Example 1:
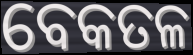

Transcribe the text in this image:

ବେକତଳ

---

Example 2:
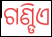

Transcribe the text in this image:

ଗଣ୍ଡିଏ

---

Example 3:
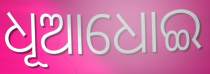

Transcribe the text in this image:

ଧୂଆଧୋଇ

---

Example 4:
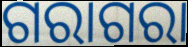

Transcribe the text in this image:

ଗରାଗରା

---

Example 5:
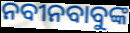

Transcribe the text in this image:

ନବୀନବାବୁଙ୍କ